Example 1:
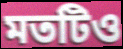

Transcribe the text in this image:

মতটিও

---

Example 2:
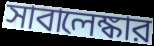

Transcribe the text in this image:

সাবালেঙ্কার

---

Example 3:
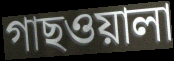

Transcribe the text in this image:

গাছওয়ালা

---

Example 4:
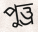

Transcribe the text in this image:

পুত্ত্র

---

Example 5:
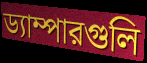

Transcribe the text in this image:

ড্যাম্পারগুলি